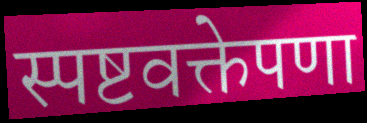
स्पष्टवक्तेपणा